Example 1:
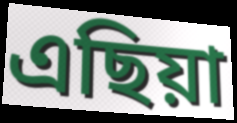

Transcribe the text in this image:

এছিয়া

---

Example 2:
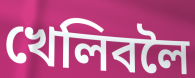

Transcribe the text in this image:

খেলিবলৈ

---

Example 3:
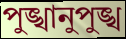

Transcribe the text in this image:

পুঙ্খানুপুঙ্খ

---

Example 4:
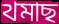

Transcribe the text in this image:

থমাছ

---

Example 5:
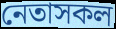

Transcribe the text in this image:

নেতাসকল